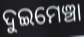
ଦୁଇମେଞ୍ଚା